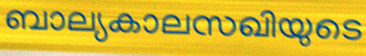
ബാല്യകാലസഖിയുടെ